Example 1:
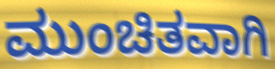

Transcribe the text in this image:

ಮುಂಚಿತವಾಗಿ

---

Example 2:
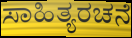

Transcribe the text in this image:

ಸಾಹಿತ್ಯರಚನೆ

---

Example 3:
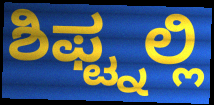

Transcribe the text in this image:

ಶಿಫ್ಟ್ನಲ್ಲಿ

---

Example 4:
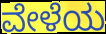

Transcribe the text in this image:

ವೇಳೆಯ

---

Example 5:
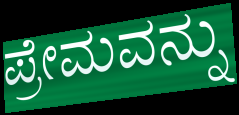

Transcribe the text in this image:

ಪ್ರೇಮವನ್ನು